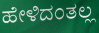
ಹೇಳಿದಂತಲ್ಲ